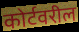
कोर्टवरील